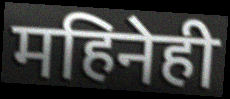
महिनेही